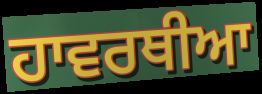
ਹਾਵਰਥੀਆ